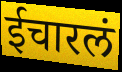
ईचारलं